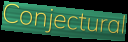
Conjectural